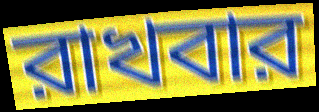
রাখবার